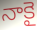
నాకై